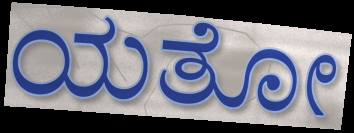
ಯತೋ